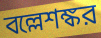
বল্লেশঙ্কর